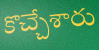
కొచ్చేశారు